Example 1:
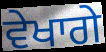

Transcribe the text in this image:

ਵੇਖਾਗੇ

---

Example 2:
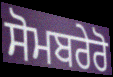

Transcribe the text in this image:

ਸੋਮਬਰੇਰੋ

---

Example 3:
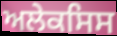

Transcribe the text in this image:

ਅਲੇਕਸਿਸ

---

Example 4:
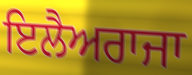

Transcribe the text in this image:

ਇਲੈਅਰਾਜਾ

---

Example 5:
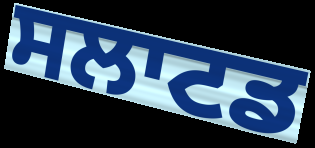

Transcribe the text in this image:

ਸਲਾਟਡ